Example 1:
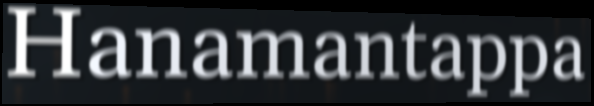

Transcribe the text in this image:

Hanamantappa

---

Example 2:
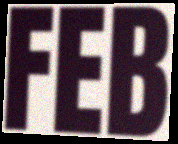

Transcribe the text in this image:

FEB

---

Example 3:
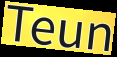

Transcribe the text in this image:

Teun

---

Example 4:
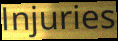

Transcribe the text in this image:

Injuries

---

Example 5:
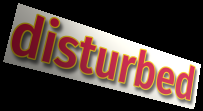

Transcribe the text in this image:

disturbed